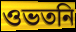
ওভতনি